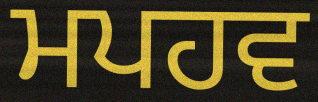
ਮਪਹਵ